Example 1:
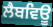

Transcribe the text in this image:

ਲੈਬਵਿਊ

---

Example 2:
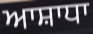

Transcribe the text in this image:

ਆਸ਼ਾਧਾ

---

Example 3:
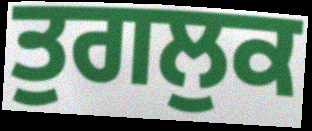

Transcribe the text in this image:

ਤੁਗਲੁਕ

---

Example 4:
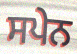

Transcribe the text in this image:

ਸਪੇਨ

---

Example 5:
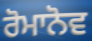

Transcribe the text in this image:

ਰੋਮਾਨੋਵ